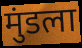
मुंडला